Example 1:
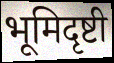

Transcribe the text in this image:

भूमिदृष्टी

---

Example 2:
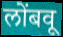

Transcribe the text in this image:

लोंबवू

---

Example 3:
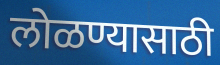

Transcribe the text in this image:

लोळण्यासाठी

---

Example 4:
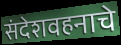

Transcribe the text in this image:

संदेशवहनाचे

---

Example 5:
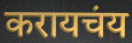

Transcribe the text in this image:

करायचंय